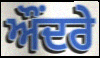
ਔਂਦਰੇ